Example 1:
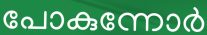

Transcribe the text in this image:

പോകുന്നോർ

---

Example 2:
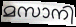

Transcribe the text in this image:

മസാനി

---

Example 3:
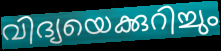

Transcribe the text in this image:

വിദ്യയെക്കുറിച്ചും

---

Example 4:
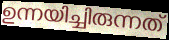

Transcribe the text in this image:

ഉന്നയിച്ചിരുന്നത്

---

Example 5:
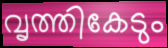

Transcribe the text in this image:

വൃത്തികേടും